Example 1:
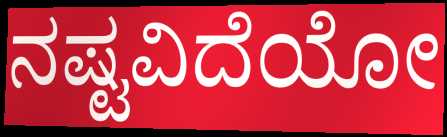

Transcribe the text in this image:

ನಷ್ಟವಿದೆಯೋ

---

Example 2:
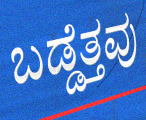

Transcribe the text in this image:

ಬಡ್ಡೆತ್ತವು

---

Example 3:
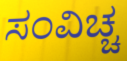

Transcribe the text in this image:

ಸಂವಿಚ್ಚ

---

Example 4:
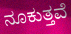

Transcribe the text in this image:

ನೂಕುತ್ತವೆ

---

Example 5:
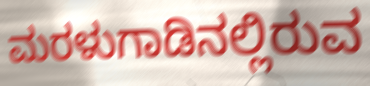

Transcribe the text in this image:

ಮರಳುಗಾಡಿನಲ್ಲಿರುವ